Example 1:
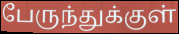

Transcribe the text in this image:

பேருந்துக்குள்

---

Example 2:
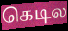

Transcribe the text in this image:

கெடில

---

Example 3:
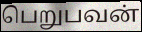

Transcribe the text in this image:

பெறுபவன்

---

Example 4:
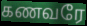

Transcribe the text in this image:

கணவரே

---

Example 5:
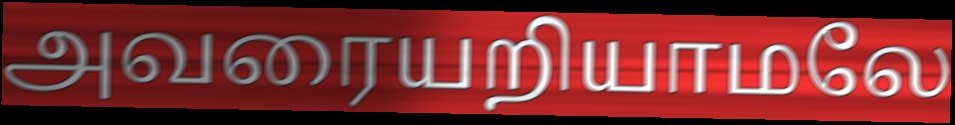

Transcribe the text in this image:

அவரையறியாமலே